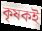
কৃষকই